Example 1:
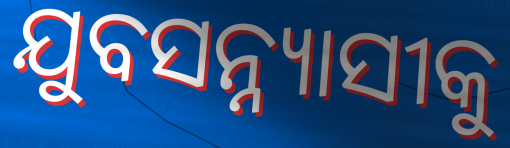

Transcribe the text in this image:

ଯୁବସନ୍ନ୍ୟାସୀକୁ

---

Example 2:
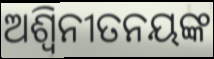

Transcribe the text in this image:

ଅଶ୍ୱିନୀତନୟଙ୍କ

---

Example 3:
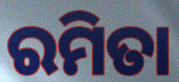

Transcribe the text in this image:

ରମିତା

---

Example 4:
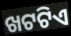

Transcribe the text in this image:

ଖଟଟିଏ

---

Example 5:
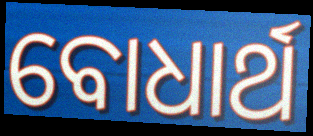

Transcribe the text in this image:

ବୋଧାର୍ଥ